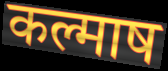
कल्माष